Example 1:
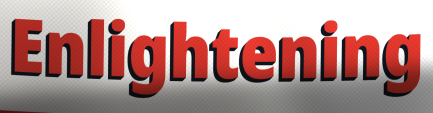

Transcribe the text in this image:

Enlightening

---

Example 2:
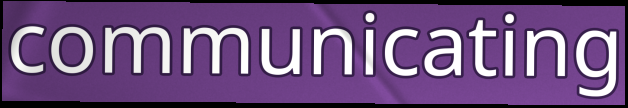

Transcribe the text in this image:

communicating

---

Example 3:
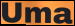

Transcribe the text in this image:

Uma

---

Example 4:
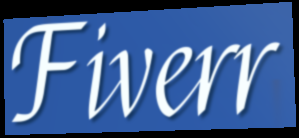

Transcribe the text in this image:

Fiverr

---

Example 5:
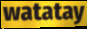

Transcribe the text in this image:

watatay